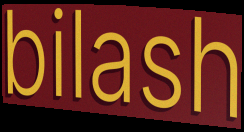
bilash